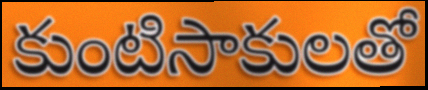
కుంటిసాకులతో